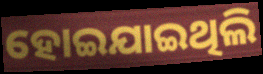
ହୋଇଯାଇଥିଲି